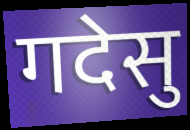
गदेसु